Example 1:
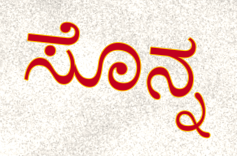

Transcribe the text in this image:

ಸೊನ್ನ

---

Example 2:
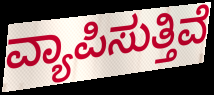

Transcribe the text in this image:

ವ್ಯಾಪಿಸುತ್ತಿವೆ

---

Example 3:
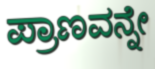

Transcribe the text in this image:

ಪ್ರಾಣವನ್ನೇ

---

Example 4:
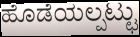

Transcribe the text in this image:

ಹೊಡೆಯಲ್ಪಟ್ಟು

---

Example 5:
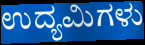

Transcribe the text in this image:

ಉದ್ಯಮಿಗಳು